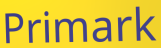
Primark